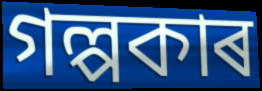
গল্পকাৰ